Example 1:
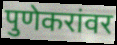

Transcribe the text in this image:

पुणेकरांवर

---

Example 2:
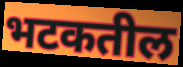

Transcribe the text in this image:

भटकतील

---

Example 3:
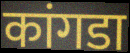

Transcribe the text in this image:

कांगडा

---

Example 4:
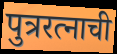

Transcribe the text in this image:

पुत्ररत्नाची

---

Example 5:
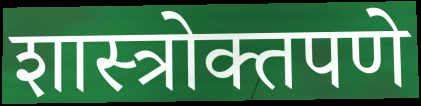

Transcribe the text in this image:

शास्त्रोक्तपणे